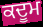
ਕਦੂਮ